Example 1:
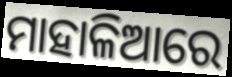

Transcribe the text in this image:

ମାହାଳିଆରେ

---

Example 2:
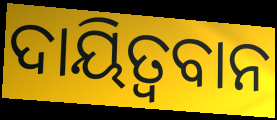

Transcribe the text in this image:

ଦାୟିତ୍ଵବାନ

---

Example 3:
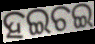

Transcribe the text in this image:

ହଇଚଇ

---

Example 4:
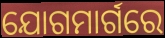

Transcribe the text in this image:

ଯୋଗମାର୍ଗରେ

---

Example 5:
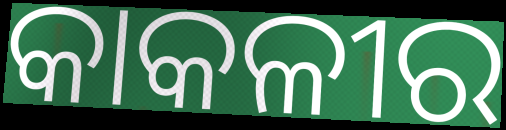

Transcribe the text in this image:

କାକଳୀର